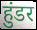
हुंडर